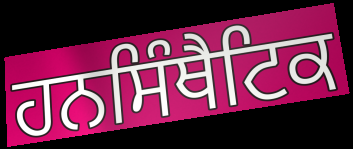
ਹਨਸਿੰਥੈਟਿਕ